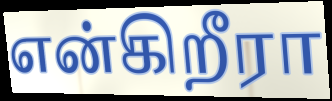
என்கிறீரா